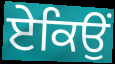
ਏਕਿਉਂ